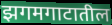
झगमगाटातील